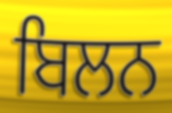
ਬਿਲਨ